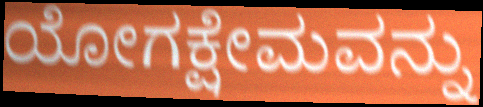
ಯೋಗಕ್ಷೇಮವನ್ನು